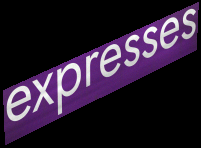
expresses